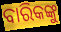
ବାରିକଙ୍କୁ